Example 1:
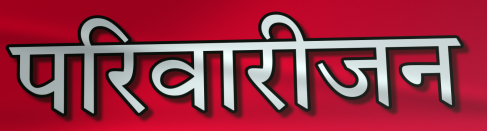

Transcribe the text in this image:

परिवारीजन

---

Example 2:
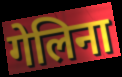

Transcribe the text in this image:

गेलिना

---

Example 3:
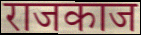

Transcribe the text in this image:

राजकाज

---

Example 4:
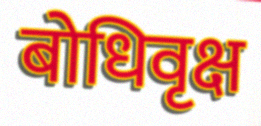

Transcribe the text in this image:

बोधिवृक्ष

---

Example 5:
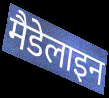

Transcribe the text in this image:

मैडेलाइन